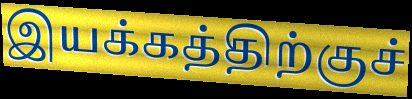
இயக்கத்திற்குச்